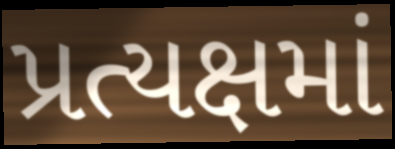
પ્રત્‍યક્ષમાં